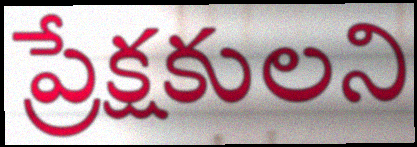
ప్రేక్షకులని